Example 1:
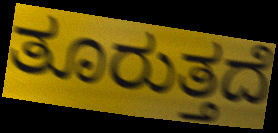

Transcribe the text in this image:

ತೂರುತ್ತದೆ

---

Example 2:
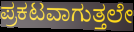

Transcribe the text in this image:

ಪ್ರಕಟವಾಗುತ್ತಲೇ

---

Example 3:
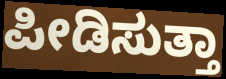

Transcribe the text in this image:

ಪೀಡಿಸುತ್ತಾ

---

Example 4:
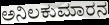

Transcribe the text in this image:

ಅನಿಲಕುಮಾರನ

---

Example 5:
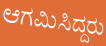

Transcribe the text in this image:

ಆಗಮಿಸಿದ್ದರು